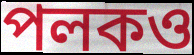
পলকও